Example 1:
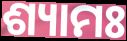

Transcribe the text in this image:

ଶ୍ୟାମଃ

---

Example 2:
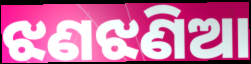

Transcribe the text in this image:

ଝଣଝଣିଆ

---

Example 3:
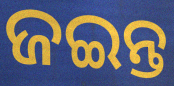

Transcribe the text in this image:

ଜଇନ୍ତ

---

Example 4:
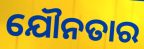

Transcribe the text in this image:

ଯୌନତାର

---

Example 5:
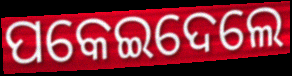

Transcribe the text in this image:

ପକେଇଦେଲେ